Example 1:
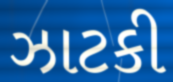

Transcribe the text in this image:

ઝાટકી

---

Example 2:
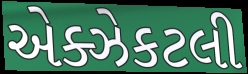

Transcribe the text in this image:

એક્ઝેકટલી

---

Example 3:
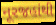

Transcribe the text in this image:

નૂરજહાંથી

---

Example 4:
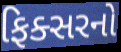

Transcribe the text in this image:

ફિક્સરનો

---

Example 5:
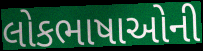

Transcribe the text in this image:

લોકભાષાઓની